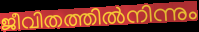
ജീവിതത്തിൽനിന്നും